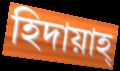
হিদায়াহ্